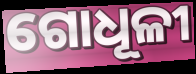
ଗୋଧୂଳୀ